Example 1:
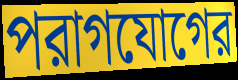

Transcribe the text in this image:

পরাগযোগের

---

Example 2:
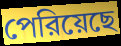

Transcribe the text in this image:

পেরিয়েছে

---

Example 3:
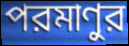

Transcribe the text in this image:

পরমাণুর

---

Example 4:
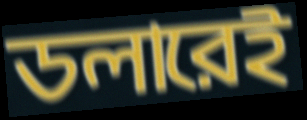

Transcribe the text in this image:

ডলারেই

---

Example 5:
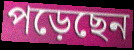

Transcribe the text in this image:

পড়েছেন